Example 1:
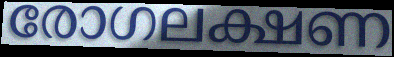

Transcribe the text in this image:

രോഗലക്ഷണ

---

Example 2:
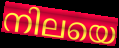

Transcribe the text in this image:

നിലയെ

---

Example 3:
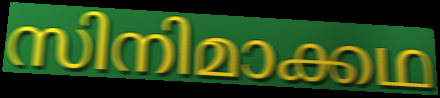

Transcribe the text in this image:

സിനിമാക്കഥ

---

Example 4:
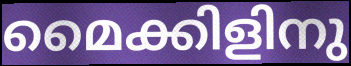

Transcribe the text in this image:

മൈക്കിളിനു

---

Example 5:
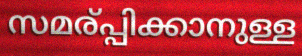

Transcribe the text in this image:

സമര്പ്പിക്കാനുള്ള